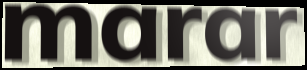
marar